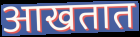
आखतात